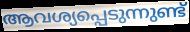
ആവശ്യപ്പെടുന്നുണ്ട്